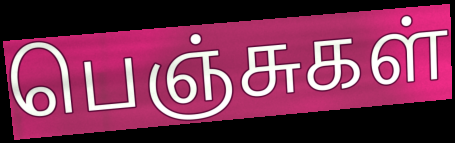
பெஞ்சுகள்